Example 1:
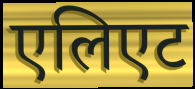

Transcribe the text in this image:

एलिएट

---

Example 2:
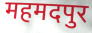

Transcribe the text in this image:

महमदपुर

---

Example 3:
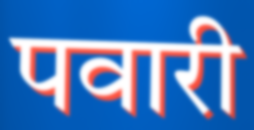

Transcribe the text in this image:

पवारी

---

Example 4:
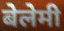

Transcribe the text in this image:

बेलेमी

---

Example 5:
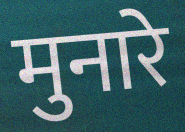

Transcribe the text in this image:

मुनारे